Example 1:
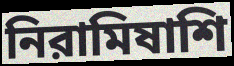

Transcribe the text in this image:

নিরামিষাশি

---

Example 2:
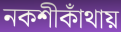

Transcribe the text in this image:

নকশীকাঁথায়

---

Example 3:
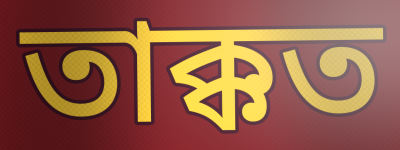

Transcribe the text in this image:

তাক্কত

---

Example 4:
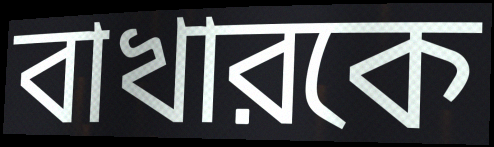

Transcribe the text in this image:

বাখারকে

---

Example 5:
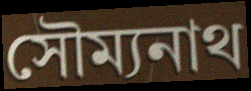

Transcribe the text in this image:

সৌম্যনাথ